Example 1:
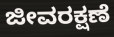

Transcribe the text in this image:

ಜೀವರಕ್ಷಣೆ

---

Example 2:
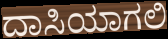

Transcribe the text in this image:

ದಾಸಿಯಾಗಲಿ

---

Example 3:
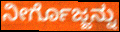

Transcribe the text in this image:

ನೀರ್ಗೊಜ್ಜನ್ನು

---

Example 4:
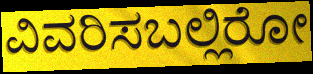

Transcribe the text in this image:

ವಿವರಿಸಬಲ್ಲಿರೋ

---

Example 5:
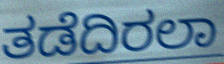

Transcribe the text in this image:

ತಡೆದಿರಲಾ